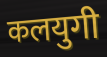
कलयुगी